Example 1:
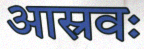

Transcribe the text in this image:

आस्रवः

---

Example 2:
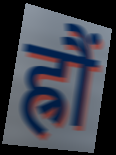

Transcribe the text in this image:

ह्रौं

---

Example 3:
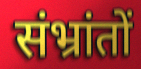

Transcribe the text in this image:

संभ्रांतों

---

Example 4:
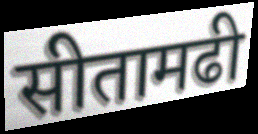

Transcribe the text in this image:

सीतामढी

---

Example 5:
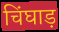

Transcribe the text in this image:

चिंघाड़